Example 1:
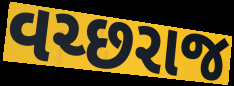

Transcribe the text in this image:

વચ્છરાજ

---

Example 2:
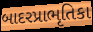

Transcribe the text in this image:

બાદરપ્રાભૃતિકા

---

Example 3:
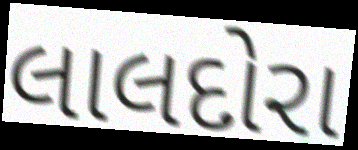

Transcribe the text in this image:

લાલદોરા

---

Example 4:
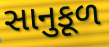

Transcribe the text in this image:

સાનુકૂળ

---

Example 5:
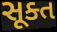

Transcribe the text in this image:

સૂક્ત